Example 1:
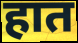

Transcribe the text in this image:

हात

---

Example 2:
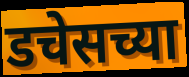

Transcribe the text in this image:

डचेसच्या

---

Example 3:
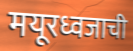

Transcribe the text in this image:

मयूरध्वजाची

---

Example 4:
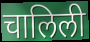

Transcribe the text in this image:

चालिली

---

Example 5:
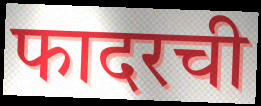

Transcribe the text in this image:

फादरची